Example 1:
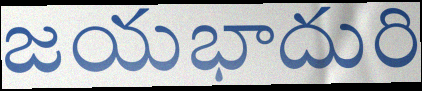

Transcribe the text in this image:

జయభాదురి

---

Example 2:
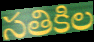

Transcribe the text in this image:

సతికిల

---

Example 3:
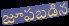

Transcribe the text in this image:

జూపబడిన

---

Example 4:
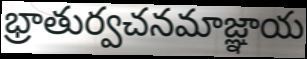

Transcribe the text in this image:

భ్రాతుర్వచనమాజ్ఞాయ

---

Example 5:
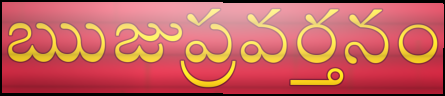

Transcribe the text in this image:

ఋజుప్రవర్తనం